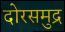
दोरसमुद्र